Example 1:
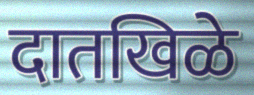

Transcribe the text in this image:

दातखिळे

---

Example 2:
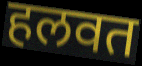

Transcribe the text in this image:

हलवत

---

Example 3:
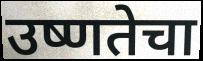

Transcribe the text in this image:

उष्णतेचा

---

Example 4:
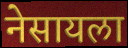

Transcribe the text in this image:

नेसायला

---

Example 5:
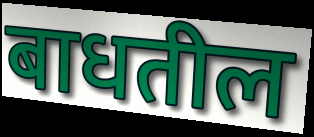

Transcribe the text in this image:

बाधतील